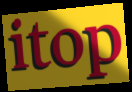
itop